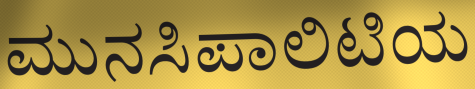
ಮುನಸಿಪಾಲಿಟಿಯ